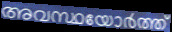
അവസ്ഥയോർത്ത്